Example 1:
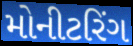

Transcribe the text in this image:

મોનીટરિંગ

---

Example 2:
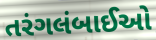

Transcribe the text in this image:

તરંગલંબાઈઓ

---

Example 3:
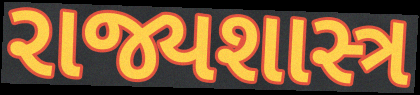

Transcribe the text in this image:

રાજ્યશાસ્ત્ર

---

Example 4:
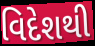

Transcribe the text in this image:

વિદેશથી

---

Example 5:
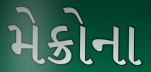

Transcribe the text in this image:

મેક્રોના